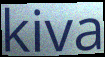
kiva